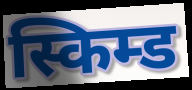
स्किम्ड